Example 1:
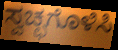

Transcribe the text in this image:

ಸ್ವಚ್ಛಗೊಳಿಸಿ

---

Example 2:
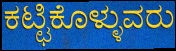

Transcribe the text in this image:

ಕಟ್ಟಿಕೊಳ್ಳುವರು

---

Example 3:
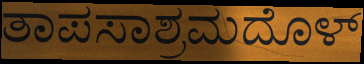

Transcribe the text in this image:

ತಾಪಸಾಶ್ರಮದೊಳ್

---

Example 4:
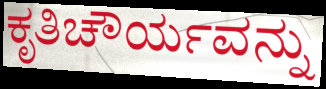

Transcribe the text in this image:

ಕೃತಿಚೌರ್ಯವನ್ನು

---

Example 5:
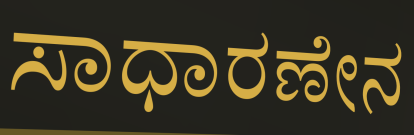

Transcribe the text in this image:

ಸಾಧಾರಣೇನ